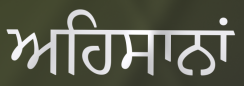
ਅਹਿਸਾਨਾਂ